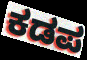
ಕಡಪ